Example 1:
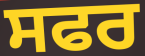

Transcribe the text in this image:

ਸਫਰ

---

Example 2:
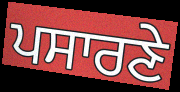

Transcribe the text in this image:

ਪਸਾਰਣੇ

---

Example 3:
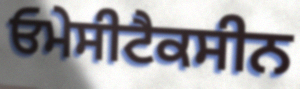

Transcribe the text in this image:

ਓਮੇਸੀਟੈਕਸੀਨ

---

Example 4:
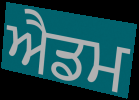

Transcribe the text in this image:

ਐਡਮ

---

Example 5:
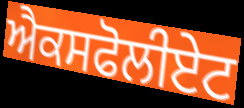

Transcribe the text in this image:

ਐਕਸਫੋਲੀਏਟ